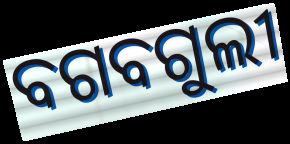
ବଗବଗୁଲୀ